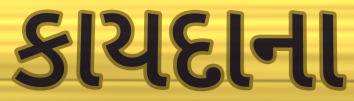
કાયદાના